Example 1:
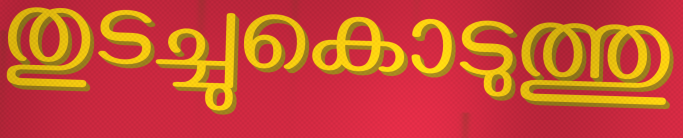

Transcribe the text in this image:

തുടച്ചുകൊടുത്തു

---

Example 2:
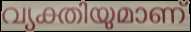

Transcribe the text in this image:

വ്യക്തിയുമാണ്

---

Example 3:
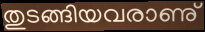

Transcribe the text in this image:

തുടങ്ങിയവരാണു്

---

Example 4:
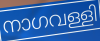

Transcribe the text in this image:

നാഗവള്ളി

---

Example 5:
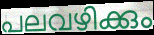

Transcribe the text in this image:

പലവഴിക്കും